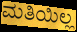
ಮತಿಯಿಲ್ಲ